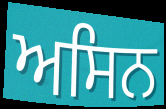
ਅਸਿਨ